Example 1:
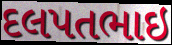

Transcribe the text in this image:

દલપતભાઇ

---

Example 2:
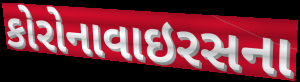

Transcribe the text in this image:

કોરોનાવાઇરસના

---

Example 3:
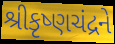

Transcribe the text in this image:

શ્રીકૃષ્ણચંદ્રને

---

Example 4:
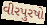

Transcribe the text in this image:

વીરપુરષો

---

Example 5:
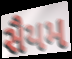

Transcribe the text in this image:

સૈયમ